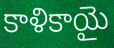
కాళికాయై